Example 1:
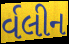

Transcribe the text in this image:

ર્વલીન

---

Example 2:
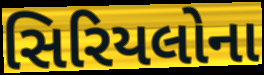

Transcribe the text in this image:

સિરિયલોના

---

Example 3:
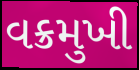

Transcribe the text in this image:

વક્રમુખી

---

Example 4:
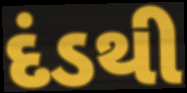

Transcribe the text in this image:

દંડથી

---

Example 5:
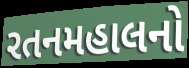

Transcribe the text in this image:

રતનમહાલનો